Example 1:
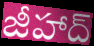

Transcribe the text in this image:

జీహాద్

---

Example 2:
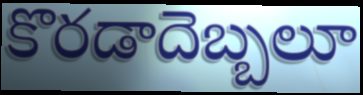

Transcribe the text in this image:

కొరడాదెబ్బలూ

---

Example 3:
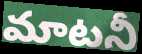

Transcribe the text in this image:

మాటనీ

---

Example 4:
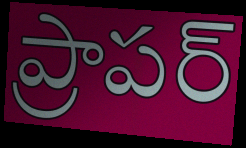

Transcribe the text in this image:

ప్రాపర్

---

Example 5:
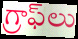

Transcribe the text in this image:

గ్రాఫ్‌లు